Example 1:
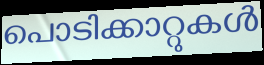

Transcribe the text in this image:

പൊടിക്കാറ്റുകൾ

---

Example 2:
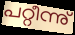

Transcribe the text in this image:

പറ്റീന്നു്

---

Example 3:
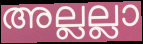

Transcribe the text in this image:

അല്ലല്ലാ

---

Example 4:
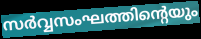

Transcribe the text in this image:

സർവ്വസംഘത്തിന്റെയും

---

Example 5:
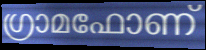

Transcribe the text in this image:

ഗ്രാമഫോണ്